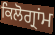
ਕਿਲੋਗ੍ਰਾਂਮ